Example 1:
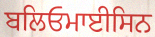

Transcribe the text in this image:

ਬਲਿਓਮਾਈਸਿਨ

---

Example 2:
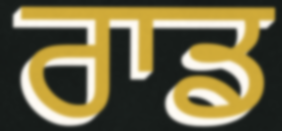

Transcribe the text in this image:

ਰਾਡ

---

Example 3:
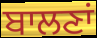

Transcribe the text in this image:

ਬਾਲਣਾਂ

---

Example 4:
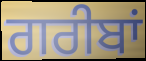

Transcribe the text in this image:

ਗਰੀਬਾਂ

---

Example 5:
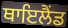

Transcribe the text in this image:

ਥਾਇਲੈਂਡ